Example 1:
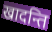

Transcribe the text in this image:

खादन्ति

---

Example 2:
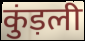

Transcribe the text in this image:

कुंड़ली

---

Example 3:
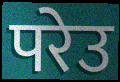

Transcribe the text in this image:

परेउ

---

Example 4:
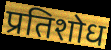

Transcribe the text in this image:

प्रतिशोध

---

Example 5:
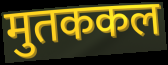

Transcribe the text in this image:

मुतककल